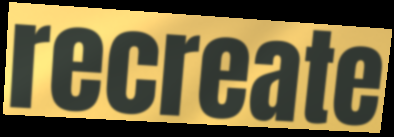
recreate